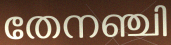
തേനഞ്ചി